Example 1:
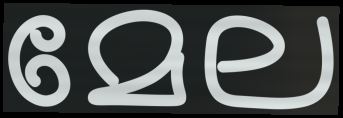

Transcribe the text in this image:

മേല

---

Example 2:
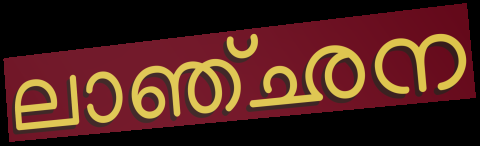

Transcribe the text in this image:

ലാഞ്ഛന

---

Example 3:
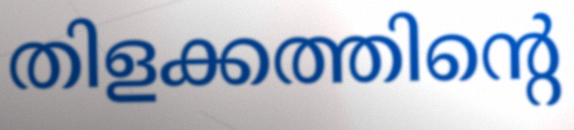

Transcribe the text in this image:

തിളക്കത്തിന്റെ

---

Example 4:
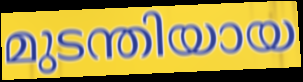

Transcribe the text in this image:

മുടന്തിയായ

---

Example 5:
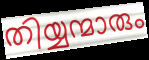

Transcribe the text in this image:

തിയ്യന്മാരും